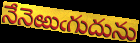
నేనెఱుఁగుదును